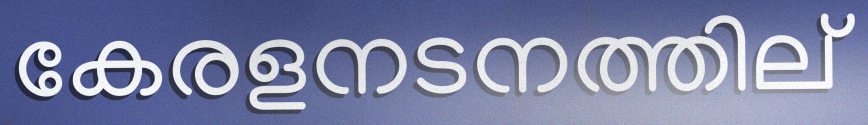
കേരളനടനത്തില്